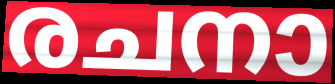
രചനാ